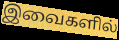
இவைகளில்